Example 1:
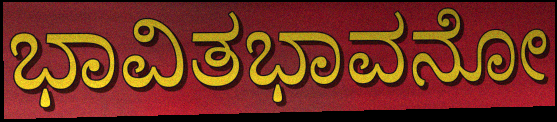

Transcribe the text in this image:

ಭಾವಿತಭಾವನೋ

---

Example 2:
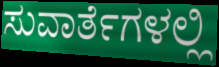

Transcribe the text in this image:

ಸುವಾರ್ತೆಗಳಲ್ಲಿ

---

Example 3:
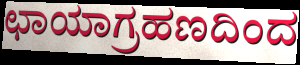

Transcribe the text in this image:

ಛಾಯಾಗ್ರಹಣದಿಂದ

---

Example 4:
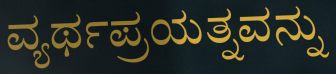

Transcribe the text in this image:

ವ್ಯರ್ಥಪ್ರಯತ್ನವನ್ನು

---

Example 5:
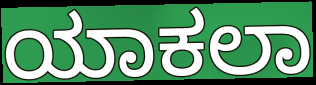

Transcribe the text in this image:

ಯಾಕಲಾ